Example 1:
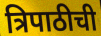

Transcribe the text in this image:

त्रिपाठीची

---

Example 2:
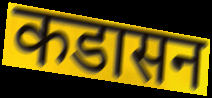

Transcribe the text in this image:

कडासन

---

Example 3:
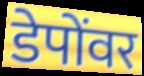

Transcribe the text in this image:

डेपोंवर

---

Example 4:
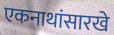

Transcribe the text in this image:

एकनाथांसारखे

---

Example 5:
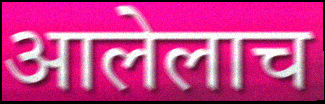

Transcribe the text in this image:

आलेलाच